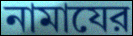
নামাযের